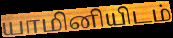
யாமினியிடம்